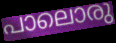
പാലൊരു